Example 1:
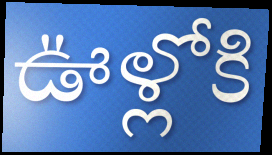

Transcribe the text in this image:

ఊళ్లోకి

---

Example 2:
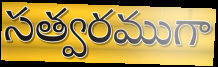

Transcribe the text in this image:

సత్వరముగా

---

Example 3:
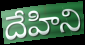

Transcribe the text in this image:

దేహిని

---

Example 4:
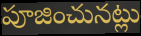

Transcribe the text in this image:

పూజించునట్లు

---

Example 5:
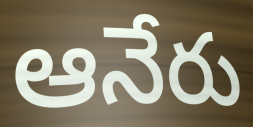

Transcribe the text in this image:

ఆనేరు